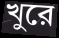
খুরে